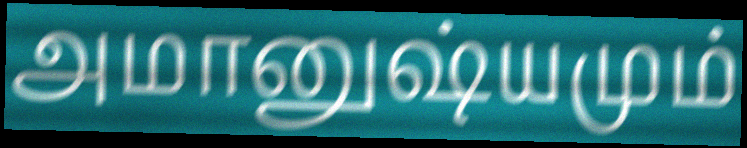
அமானுஷ்யமும்